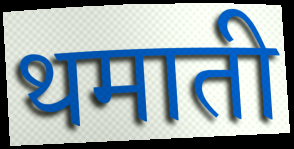
थमाती